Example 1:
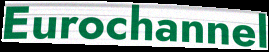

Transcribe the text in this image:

Eurochannel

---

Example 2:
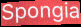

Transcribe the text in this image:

Spongia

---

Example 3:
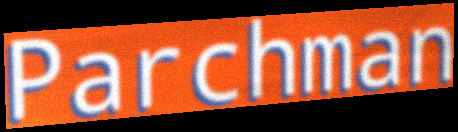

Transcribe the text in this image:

Parchman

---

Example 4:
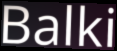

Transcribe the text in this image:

Balki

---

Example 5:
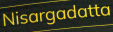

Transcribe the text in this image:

Nisargadatta